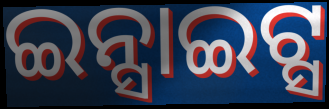
ଇନ୍ସାଇଟ୍ସ